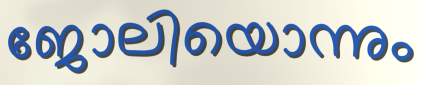
ജോലിയൊന്നും